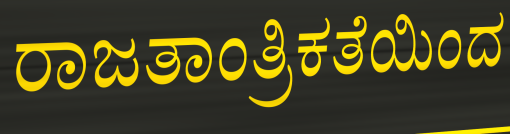
ರಾಜತಾಂತ್ರಿಕತೆಯಿಂದ